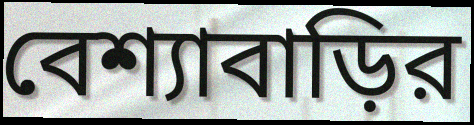
বেশ্যাবাড়ির